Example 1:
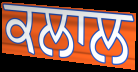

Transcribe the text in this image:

ਕਲਾਲ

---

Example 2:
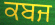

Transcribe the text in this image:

ਕਬਜ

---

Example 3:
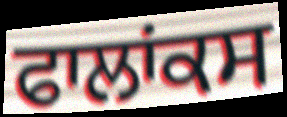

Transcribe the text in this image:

ਫਾਲਾਂਕਸ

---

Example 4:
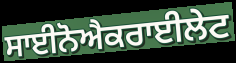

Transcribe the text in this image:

ਸਾਈਨੋਐਕਰਾਈਲੇਟ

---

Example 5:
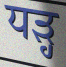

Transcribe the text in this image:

ਧੜ੍ਹ